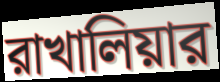
রাখালিয়ার